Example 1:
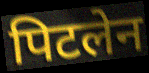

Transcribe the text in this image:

पिटलेन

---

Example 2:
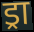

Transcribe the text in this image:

ड्रा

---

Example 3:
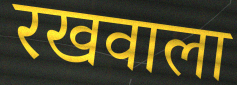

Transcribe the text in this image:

रखवाला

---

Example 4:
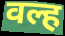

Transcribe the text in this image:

वल्ह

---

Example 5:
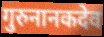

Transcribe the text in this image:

गुरुनानकदेव